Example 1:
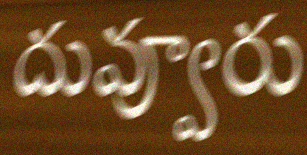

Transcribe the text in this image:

దువ్వూరు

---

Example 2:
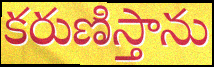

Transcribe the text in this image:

కరుణిస్తాను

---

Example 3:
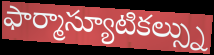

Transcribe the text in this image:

ఫార్మాస్యూటికల్స్ను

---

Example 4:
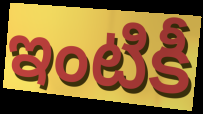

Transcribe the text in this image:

ఇంటికీ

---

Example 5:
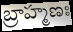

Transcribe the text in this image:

బ్రాహ్మణః